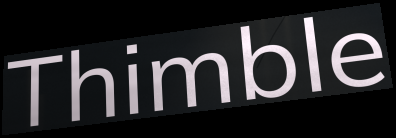
Thimble